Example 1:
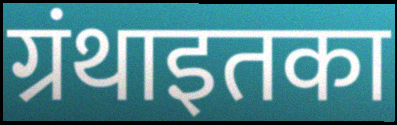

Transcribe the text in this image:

ग्रंथाइतका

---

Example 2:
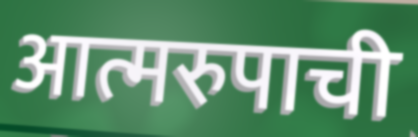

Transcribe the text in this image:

आत्मरुपाची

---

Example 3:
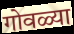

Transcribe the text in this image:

गोवळ्या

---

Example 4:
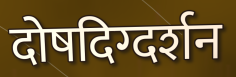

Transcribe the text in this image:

दोषदिग्दर्शन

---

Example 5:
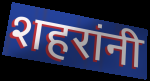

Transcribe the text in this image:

शहरांनी